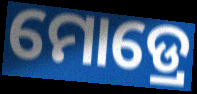
ମୋଡ୍ରେ